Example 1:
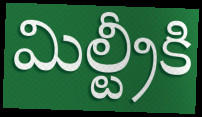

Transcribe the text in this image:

మిల్ట్రీకి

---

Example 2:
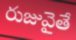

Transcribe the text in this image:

రుజువైతే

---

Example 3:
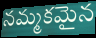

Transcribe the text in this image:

నమ్మకమైన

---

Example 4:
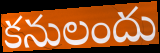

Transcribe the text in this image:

కనులందు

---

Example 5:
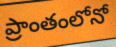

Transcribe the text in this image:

ప్రాంతంలోనో